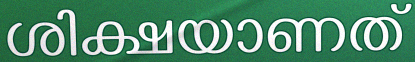
ശിക്ഷയാണത്